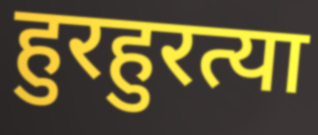
हुरहुरत्या